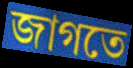
জাগতে